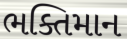
ભક્તિમાન